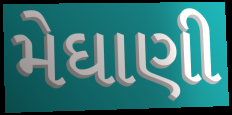
મેઘાણી